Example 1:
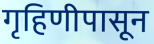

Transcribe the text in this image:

गृहिणीपासून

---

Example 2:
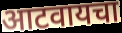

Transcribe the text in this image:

आटवायचा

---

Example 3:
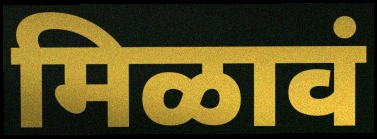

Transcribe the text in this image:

मिळावं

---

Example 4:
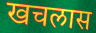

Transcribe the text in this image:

खचलास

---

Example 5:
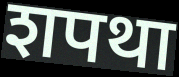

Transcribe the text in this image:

शपथा